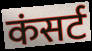
कंसर्ट